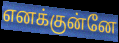
எனக்குன்னே